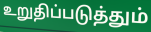
உறுதிப்படுத்தும்